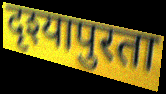
दृश्यापुरता